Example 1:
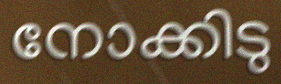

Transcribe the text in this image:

നോക്കിടു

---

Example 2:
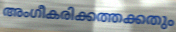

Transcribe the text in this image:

അംഗീകരിക്കത്തക്കതും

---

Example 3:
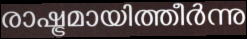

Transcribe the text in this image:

രാഷ്ട്രമായിത്തീർന്നു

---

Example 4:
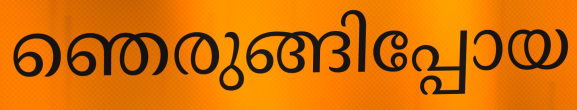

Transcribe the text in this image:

ഞെരുങ്ങിപ്പോയ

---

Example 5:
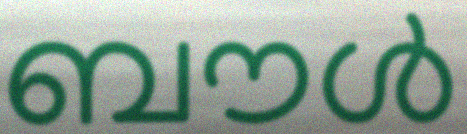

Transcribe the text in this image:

ബൗൾ